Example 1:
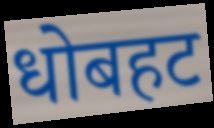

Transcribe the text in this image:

धोबहट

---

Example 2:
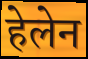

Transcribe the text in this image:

हेलेन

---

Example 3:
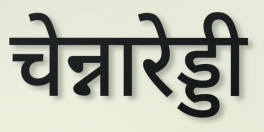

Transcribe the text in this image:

चेन्नारेड्डी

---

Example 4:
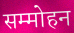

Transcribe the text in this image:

सम्मोहन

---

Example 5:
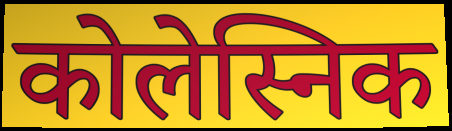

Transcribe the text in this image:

कोलेस्निक